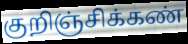
குறிஞ்சிக்கண்